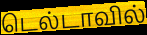
டெல்டாவில்